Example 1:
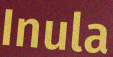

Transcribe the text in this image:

Inula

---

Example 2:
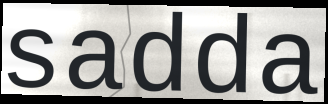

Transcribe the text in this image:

sadda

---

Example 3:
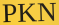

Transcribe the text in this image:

PKN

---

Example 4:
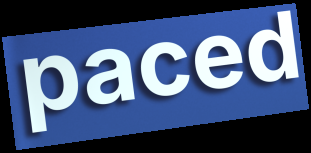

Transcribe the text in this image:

paced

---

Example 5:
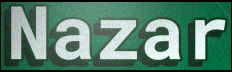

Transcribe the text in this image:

Nazar